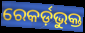
ରେକର୍ଡ଼ଭୁକ୍ତ